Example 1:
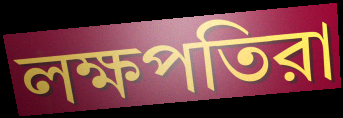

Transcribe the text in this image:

লক্ষপতিরা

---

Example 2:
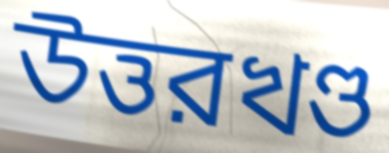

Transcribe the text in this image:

উত্তরখণ্ড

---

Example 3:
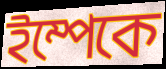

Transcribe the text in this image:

ইম্পেকে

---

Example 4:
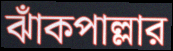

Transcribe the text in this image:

ঝাঁকপাল্লার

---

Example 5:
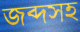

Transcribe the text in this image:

জব্দসহ